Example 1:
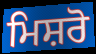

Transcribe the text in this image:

ਮਿਸ਼ਰੋ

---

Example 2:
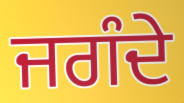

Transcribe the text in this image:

ਜਗੰਦੇ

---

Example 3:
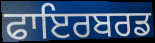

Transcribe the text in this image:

ਫਾਇਰਬਰਡ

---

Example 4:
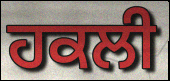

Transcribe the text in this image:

ਹਕਲੀ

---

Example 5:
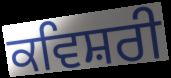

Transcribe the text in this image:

ਕਵਿਸ਼ਰੀ